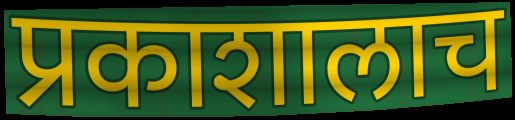
प्रकाशालाच